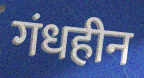
गंधहीन